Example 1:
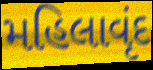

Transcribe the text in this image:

મહિલાવૃંદ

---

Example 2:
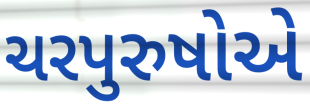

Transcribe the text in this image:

ચરપુરુષોએ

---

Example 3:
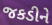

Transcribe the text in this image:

જકડીને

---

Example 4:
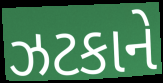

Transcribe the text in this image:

ઝટકાને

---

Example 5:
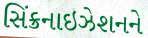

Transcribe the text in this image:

સિંક્રનાઇઝેશનને